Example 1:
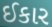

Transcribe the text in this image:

ઈકાર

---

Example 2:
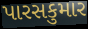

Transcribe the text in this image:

પારસકુમાર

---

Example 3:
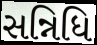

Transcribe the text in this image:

સન્નિધિ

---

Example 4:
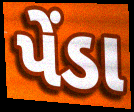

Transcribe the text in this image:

પેંડા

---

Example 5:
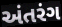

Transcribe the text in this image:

અંતરંગ